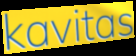
kavitas